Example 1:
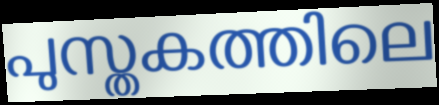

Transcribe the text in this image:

പുസ്തകത്തിലെ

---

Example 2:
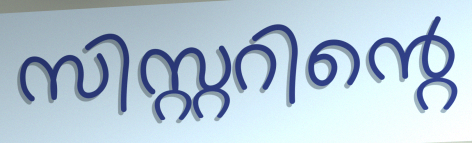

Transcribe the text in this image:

സിസ്റ്ററിന്റെ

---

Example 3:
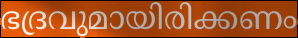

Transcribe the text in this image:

ഭദ്രവുമായിരിക്കണം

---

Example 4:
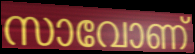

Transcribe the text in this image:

സാവോണ്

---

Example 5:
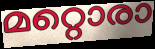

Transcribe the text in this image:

മറ്റൊരാ